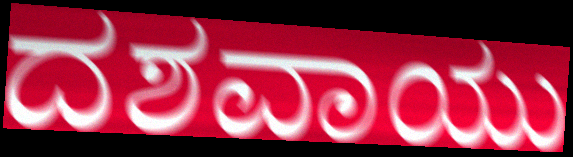
ದಶವಾಯು